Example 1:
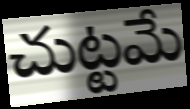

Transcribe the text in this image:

చుట్టమే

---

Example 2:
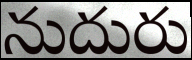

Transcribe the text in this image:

నుదురు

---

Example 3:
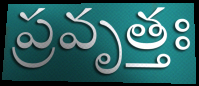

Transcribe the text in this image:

ప్రవృత్తః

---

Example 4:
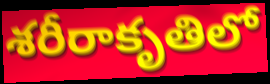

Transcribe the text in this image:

శరీరాకృతిలో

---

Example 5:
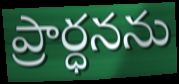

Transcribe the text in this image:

ప్రార్ధనను